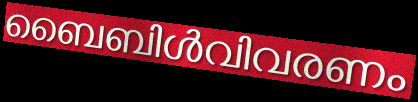
ബൈബിൾവിവരണം